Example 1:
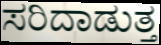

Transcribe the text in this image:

ಸರಿದಾಡುತ್ತ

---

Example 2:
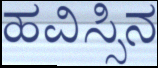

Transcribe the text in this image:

ಹವಿಸ್ಸಿನ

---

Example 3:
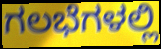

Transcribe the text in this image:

ಗಲಭೆಗಳಲ್ಲಿ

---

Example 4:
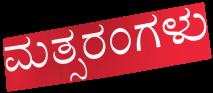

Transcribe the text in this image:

ಮತ್ಸರಂಗಳು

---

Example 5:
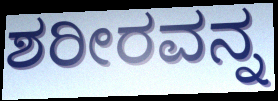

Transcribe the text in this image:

ಶರೀರವನ್ನ